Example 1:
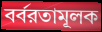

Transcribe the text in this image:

বর্বরতামূলক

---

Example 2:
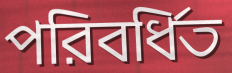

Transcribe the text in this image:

পরিবর্ধিত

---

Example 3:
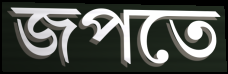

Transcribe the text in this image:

জপতে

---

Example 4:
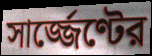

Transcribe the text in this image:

সার্জ্জেণ্টের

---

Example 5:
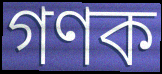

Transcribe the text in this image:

গণক